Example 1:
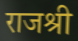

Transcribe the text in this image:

राजश्री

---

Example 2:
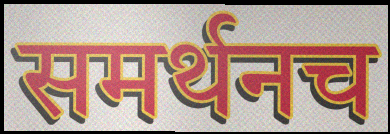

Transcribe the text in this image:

समर्थनच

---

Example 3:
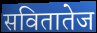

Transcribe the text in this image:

सवितातेज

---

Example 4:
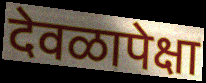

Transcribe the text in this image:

देवळापेक्षा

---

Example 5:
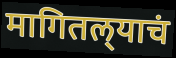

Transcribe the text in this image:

मागितल्याचं